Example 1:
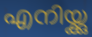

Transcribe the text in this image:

എനിയ്ക്കു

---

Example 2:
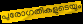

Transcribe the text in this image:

പുരോഗതികളുടെയും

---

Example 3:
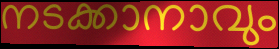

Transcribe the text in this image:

നടക്കാനാവും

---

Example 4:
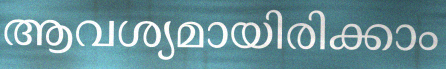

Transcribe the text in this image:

ആവശ്യമായിരിക്കാം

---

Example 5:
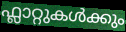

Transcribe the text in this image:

ഫ്ലാറ്റുകൾക്കും